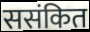
ससंकित